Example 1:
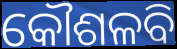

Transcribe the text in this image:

କୌଶଳବି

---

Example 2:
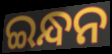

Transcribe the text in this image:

ଇନ୍ଧନ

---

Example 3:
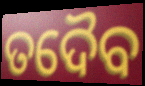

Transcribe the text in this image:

ତଦୈବ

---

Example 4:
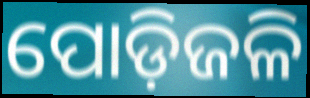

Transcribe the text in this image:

ପୋଡ଼ିଜଳି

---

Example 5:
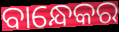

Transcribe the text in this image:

ବାନ୍ଧେକର